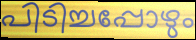
പിടിച്ചപ്പോഴും